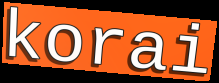
korai